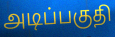
அடிப்பகுதி